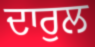
ਦਾਰੁਲ